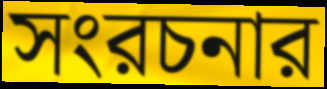
সংরচনার